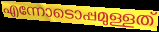
എന്നോടൊപ്പമുള്ളത്